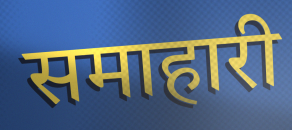
समाहारी